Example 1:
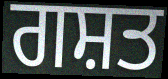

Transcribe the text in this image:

ਗਸ਼ਤ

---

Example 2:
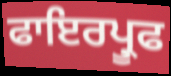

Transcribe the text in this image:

ਫਾਇਰਪ੍ਰੂਫ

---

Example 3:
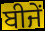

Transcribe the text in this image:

ਬੀਜੇਂ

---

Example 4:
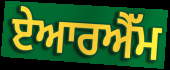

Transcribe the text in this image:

ਏਆਰਐੱਮ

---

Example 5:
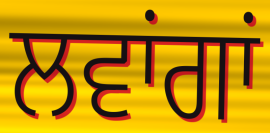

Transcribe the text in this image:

ਲਵਾਂਗਾਂ